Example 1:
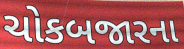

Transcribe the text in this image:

ચોકબજારના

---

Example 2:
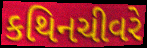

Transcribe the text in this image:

કથિનચીવરે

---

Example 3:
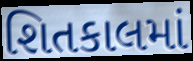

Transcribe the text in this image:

શિતકાલમાં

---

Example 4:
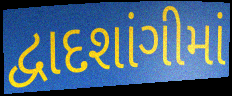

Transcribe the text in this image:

દ્વાદશાંગીમાં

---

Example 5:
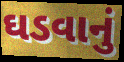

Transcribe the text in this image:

ઘડવાનું